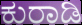
ಕುರಾಡಿ